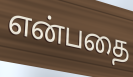
என்பதை